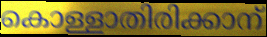
കൊള്ളാതിരിക്കാന്